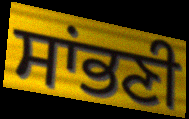
ਸਾਂਭਣੀ